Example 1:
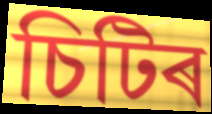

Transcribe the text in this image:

চিটিৰ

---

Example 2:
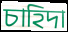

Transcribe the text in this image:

চাহিদা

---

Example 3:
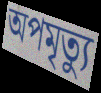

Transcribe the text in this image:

অপমৃত্যু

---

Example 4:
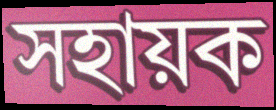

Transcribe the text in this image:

সহায়ক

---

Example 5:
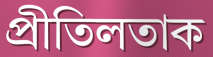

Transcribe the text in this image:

প্ৰীতিলতাক